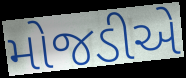
મોજડીએ